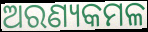
ଅରଣ୍ୟକମଳ